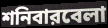
শনিবারবেলা